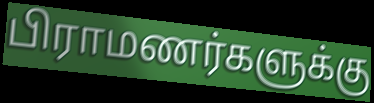
பிராமணர்களுக்கு